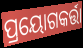
ପ୍ରୟୋଗକର୍ତ୍ତା